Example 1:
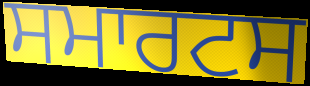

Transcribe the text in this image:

ਸਮਾਰਟਸ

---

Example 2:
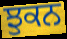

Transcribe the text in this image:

ਝੁਕਨ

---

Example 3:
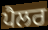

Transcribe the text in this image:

ਪੈਲਰ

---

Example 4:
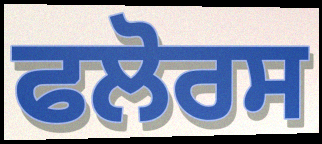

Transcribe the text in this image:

ਫਲੋਰਸ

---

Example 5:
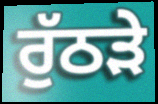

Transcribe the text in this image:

ਰੁੱਠੜੇ